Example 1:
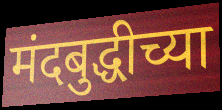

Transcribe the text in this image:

मंदबुद्धीच्या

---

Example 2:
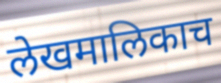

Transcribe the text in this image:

लेखमालिकाच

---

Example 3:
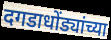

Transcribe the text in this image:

दगडाधोंड्यांच्या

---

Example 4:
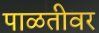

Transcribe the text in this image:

पाळतीवर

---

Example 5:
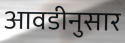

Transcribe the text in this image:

आवडीनुसार